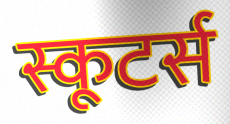
स्‍कूटर्स